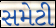
સમેટી